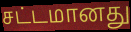
சட்டமானது